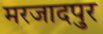
मरजादपुर